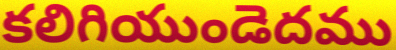
కలిగియుండెదము